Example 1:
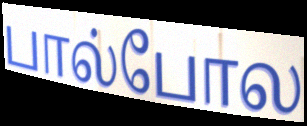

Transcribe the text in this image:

பால்போல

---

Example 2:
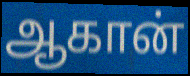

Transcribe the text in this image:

ஆகான்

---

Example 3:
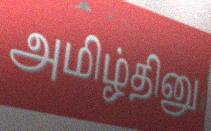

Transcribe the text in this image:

அமிழ்தினு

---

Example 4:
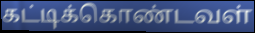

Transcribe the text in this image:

கட்டிக்கொண்டவள்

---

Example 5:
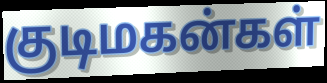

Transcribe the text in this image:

குடிமகன்கள்